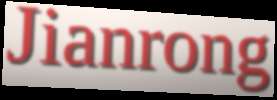
Jianrong